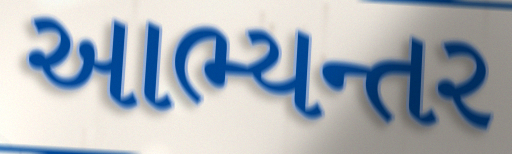
આભ્યન્તર